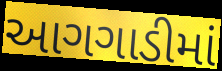
આગગાડીમાં